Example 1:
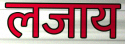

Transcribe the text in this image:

लजाय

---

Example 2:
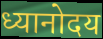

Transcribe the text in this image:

ध्यानोदय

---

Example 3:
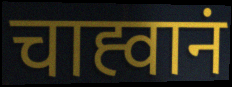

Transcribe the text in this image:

चाह्वानं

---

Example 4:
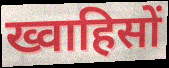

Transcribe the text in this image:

ख्वाहिसों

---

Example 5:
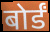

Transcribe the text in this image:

बोर्डं